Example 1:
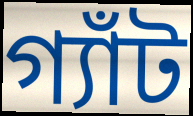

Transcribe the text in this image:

গ্যাঁট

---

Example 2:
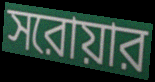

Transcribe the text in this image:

সরোয়ার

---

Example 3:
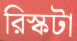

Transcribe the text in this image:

রিস্কটা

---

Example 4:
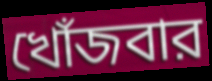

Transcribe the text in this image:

খোঁজবার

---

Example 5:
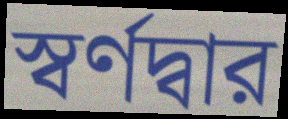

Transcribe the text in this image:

স্বর্ণদ্বার